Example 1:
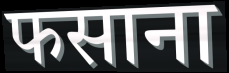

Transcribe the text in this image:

फसाना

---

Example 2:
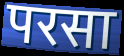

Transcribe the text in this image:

परसा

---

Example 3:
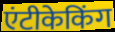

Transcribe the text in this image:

एंटीकेकिंग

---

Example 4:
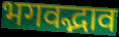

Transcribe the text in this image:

भगवद्भाव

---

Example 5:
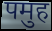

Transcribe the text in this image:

पमुह